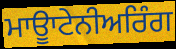
ਮਾਊਾਟੇਨੀਅਰਿੰਗ